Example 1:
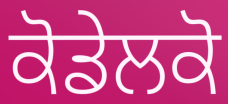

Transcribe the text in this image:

ਕੋਡੇਲਕੋ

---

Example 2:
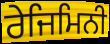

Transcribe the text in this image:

ਰੇਜਿਮਿਨੀ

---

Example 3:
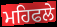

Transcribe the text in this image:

ਮਹਿਫਲੇ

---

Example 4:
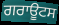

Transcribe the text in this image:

ਗਰਾਊਟਸ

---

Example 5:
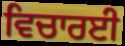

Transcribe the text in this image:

ਵਿਚਾਰਈ